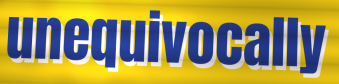
unequivocally